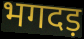
भगदड़